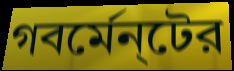
গবর্মেন্‌টের